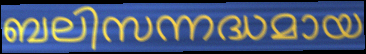
ബലിസന്നദ്ധമായ